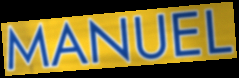
MANUEL